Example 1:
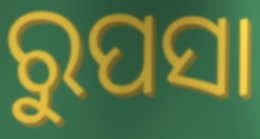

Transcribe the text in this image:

ରୁପସା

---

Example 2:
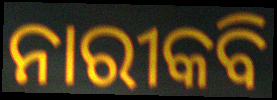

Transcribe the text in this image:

ନାରୀକବି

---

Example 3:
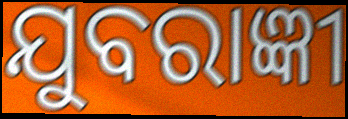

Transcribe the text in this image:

ଯୁବରାଜ୍ଞୀ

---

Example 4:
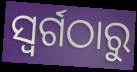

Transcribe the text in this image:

ସ୍ଵର୍ଗଠାରୁ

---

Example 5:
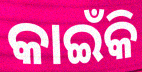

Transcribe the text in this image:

କାଇଁକି